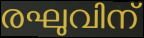
രഘുവിന്